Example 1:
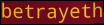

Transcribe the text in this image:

betrayeth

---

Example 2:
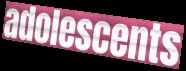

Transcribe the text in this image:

adolescents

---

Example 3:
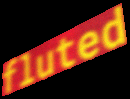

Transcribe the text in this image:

fluted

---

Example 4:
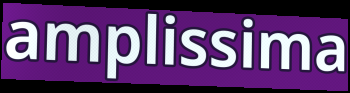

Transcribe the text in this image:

amplissima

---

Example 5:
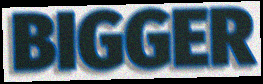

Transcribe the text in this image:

BIGGER